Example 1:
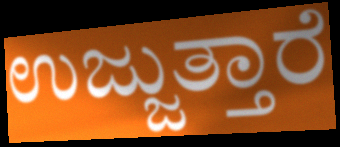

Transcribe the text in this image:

ಉಜ್ಜುತ್ತಾರೆ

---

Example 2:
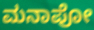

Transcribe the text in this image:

ಮನಾಪೋ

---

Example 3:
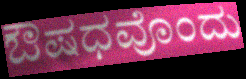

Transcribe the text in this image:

ಔಷಧವೊಂದು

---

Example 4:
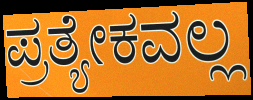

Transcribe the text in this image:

ಪ್ರತ್ಯೇಕವಲ್ಲ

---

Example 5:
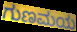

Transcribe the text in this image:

ಗುಣಮಯ